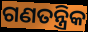
ଗଣତନ୍ତ୍ରିକ